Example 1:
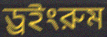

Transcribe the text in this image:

ড্রইংরুম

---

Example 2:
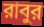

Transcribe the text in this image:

রাবুর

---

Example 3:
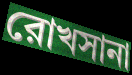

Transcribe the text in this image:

রোখসানা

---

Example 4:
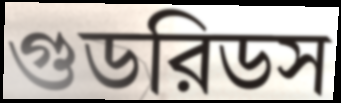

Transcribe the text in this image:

গুডরিডস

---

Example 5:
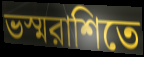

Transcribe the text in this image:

ভস্মরাশিতে